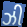
ઝી